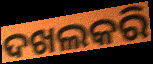
ଦଖଲକରି